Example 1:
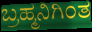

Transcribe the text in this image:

ಬ್ರಹ್ಮನಿಗಿಂತ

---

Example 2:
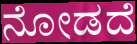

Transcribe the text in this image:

ನೋಡದೆ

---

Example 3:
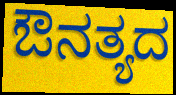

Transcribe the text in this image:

ಔನತ್ಯದ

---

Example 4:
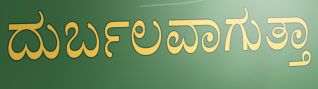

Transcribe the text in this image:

ದುರ್ಬಲವಾಗುತ್ತಾ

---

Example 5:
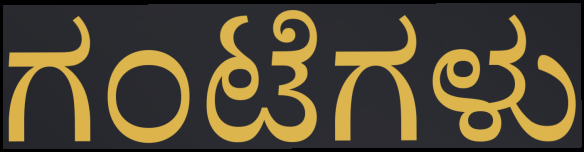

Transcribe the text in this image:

ಗಂಟೆಗಳು